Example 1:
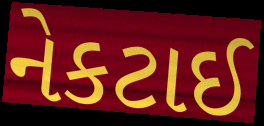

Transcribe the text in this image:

નેકટાઈ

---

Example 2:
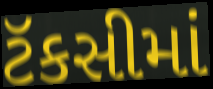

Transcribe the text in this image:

ટૅકસીમાં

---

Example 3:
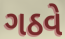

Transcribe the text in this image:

ગઠવે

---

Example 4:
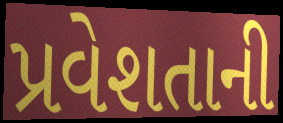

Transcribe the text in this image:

પ્રવેશતાની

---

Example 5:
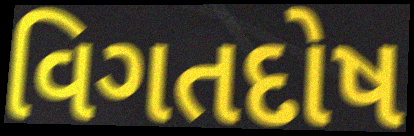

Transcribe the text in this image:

વિગતદોષ